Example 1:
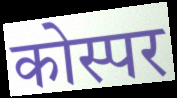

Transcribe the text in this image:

कोस्पर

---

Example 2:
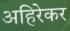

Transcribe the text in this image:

अहिरेकर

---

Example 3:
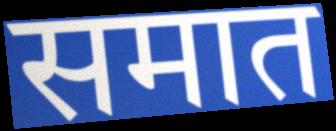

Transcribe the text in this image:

समात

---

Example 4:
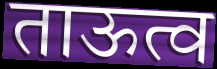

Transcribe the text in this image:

ताऊत्व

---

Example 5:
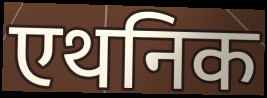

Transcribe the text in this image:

एथनिक